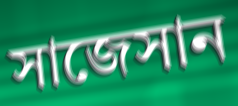
সাজেসান